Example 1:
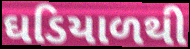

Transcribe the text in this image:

ઘડિયાળથી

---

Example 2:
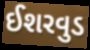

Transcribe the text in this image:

ઈશરવુડ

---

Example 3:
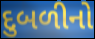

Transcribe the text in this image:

દુબળીનો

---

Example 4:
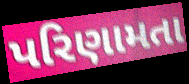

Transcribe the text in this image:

પરિણામતા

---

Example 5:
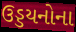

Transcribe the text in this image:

ઉડ્ડયનોના